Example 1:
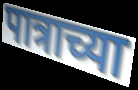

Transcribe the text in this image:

पात्राच्या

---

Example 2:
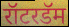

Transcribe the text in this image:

रॉटरडॅम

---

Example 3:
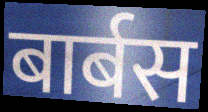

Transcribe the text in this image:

बार्बस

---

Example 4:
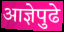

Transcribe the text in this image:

आज्ञेपुढे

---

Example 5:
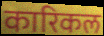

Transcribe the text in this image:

कारिकल